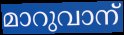
മാറുവാന്